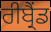
ਰੀਬ੍ਰੈਂਡ